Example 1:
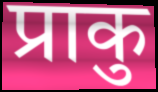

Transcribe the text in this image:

प्राकु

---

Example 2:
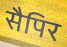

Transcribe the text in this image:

सैपिर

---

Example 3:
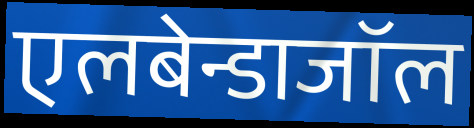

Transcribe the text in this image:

एलबेन्डाजॉल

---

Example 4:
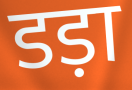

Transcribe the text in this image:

डड़ा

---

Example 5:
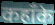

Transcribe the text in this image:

कहाँके